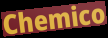
Chemico